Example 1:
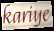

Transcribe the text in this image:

kariye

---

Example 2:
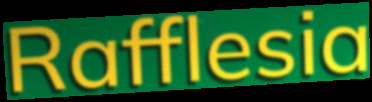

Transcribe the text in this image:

Rafflesia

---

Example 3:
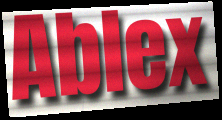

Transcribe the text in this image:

Ablex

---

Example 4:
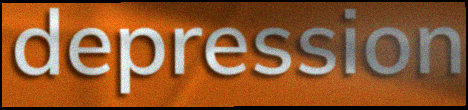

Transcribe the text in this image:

depression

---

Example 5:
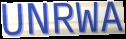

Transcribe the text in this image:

UNRWA